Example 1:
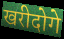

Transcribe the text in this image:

खरीदोगे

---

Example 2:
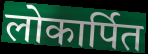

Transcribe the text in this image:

लोकार्पित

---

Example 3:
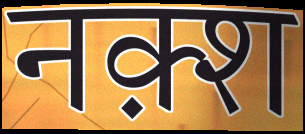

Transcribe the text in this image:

नक़्श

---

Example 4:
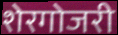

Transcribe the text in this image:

शेरगोजरी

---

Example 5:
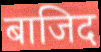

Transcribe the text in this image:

बाजिद